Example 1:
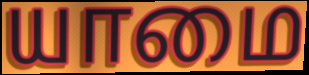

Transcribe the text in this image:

யாமை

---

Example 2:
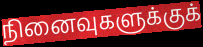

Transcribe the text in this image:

நினைவுகளுக்குக்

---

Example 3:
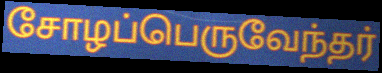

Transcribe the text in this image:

சோழப்பெருவேந்தர்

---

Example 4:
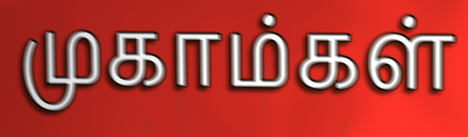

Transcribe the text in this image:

முகாம்கள்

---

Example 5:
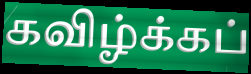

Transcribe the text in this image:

கவிழ்க்கப்